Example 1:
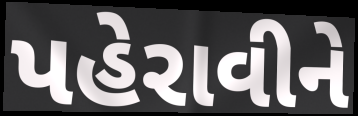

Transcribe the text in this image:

પહેરાવીને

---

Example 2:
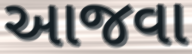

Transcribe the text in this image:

આજવા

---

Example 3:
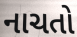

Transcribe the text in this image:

નાચતો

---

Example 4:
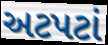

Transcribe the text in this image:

અટપટાં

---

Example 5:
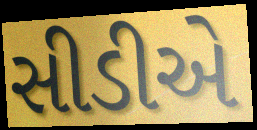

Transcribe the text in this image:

સીડીએ